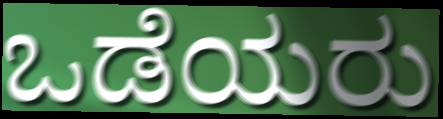
ಒಡೆಯರು